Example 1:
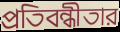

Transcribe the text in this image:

প্রতিবন্ধীতার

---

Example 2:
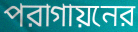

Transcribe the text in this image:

পরাগায়নের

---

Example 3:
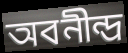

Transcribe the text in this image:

অবনীন্দ্র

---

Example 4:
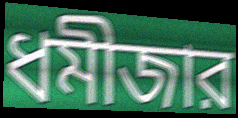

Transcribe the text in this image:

ধমীজার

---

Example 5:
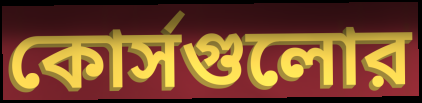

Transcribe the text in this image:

কোর্সগুলোর